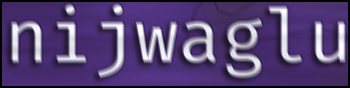
nijwaglu